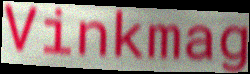
Vinkmag